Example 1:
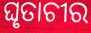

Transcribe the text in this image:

ଘୃତାଚୀର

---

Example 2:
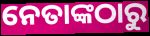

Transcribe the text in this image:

ନେତାଙ୍କଠାରୁ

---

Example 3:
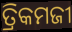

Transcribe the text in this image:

ତ୍ରିକମଜୀ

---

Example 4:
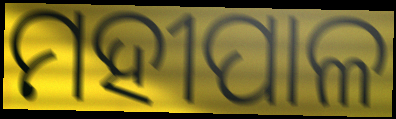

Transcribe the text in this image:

ମହୀପାଳ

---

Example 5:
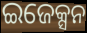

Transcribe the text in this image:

ଇଜେକ୍ସନ